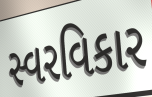
સ્વરવિકાર